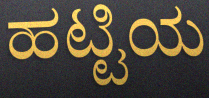
ಹಟ್ಟಿಯ